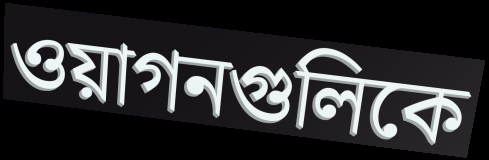
ওয়াগনগুলিকে